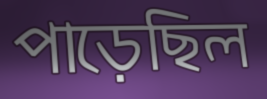
পাড়েছিল